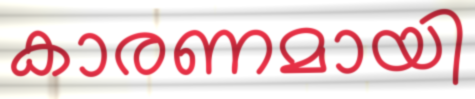
കാരണമായി